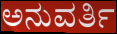
ಅನುವರ್ತಿ